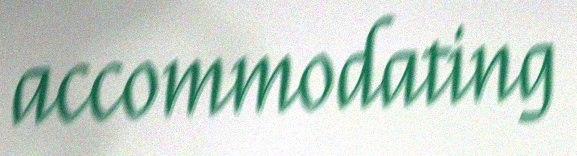
accommodating